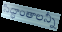
సిద్ధాంతాలన్నీ